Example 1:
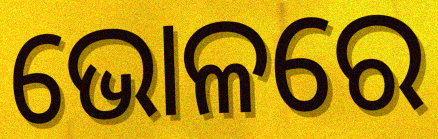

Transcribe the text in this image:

ଭୋଳରେ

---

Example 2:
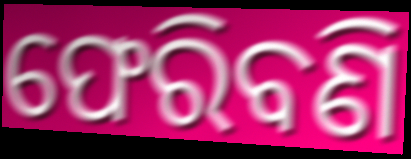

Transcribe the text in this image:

ଫେରିବଣି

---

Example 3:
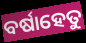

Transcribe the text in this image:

ବର୍ଷାହେତୁ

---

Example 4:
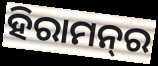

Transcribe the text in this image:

ହିରାମନ୍‍ର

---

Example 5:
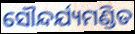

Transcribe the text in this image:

ସୌନ୍ଦର୍ଯ୍ୟମଣ୍ଡିତ